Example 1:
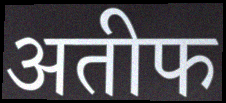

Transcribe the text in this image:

अतीफ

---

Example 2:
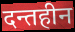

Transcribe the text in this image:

दन्तहीन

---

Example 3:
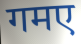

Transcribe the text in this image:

गमए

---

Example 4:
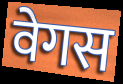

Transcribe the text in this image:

वेगस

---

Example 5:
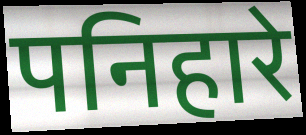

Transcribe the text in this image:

पनिहारे